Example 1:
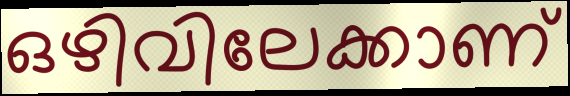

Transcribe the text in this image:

ഒഴിവിലേക്കാണ്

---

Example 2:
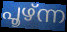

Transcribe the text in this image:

പൂഴ്ന്ന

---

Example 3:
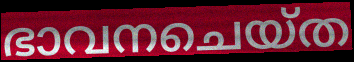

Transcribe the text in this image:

ഭാവനചെയ്ത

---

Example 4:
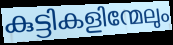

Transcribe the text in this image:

കുട്ടികളിന്മേലും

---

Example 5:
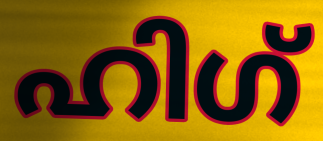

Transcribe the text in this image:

ഹിഗ്